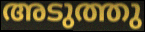
അടുത്തു